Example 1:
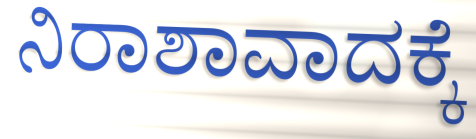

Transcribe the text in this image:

ನಿರಾಶಾವಾದಕ್ಕೆ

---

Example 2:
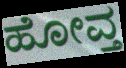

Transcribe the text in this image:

ಹೋವ್ತ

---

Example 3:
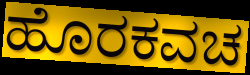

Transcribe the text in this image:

ಹೊರಕವಚ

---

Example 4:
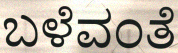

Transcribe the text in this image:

ಬಳೆವಂತೆ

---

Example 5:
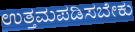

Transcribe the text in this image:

ಉತ್ತಮಪಡಿಸಬೇಕು